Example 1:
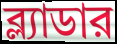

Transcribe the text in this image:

ব্ল্যাডার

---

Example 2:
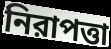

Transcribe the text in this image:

নিরাপত্তা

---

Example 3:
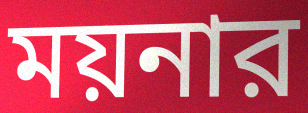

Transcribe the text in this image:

ময়নার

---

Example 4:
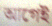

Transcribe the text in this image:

আগেই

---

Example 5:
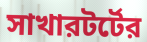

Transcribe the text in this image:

সাখারটর্টের